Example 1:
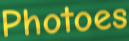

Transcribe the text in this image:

Photoes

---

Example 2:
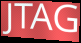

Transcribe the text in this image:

JTAG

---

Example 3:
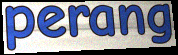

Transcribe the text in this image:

perang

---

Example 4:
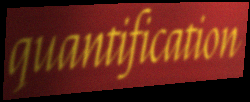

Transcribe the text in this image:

quantification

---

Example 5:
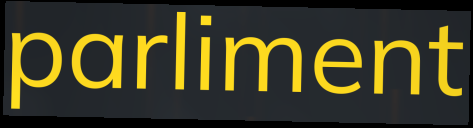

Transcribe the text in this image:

parliment